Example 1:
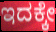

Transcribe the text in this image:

ಇದಕ್ಕೇ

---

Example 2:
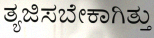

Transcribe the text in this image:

ತ್ಯಜಿಸಬೇಕಾಗಿತ್ತು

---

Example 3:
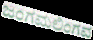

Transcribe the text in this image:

ಜಂಗಮಲಿಂಗವ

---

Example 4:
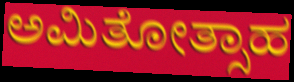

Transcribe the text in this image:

ಅಮಿತೋತ್ಸಾಹ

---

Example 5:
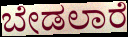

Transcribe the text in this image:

ಬೇಡಲಾರೆ